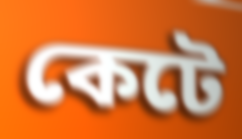
কেটে